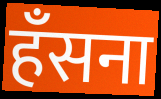
हँसना